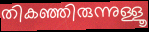
തികഞ്ഞിരുന്നുള്ളൂ